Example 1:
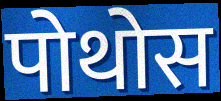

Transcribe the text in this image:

पोथोस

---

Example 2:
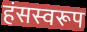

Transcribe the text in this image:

हंसस्वरूप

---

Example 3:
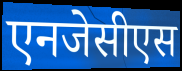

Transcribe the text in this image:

एनजेसीएस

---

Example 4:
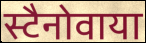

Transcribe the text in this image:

स्टैनोवाया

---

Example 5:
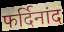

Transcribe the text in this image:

फर्दिनांद